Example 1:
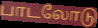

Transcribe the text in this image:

பாடலோடு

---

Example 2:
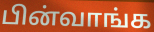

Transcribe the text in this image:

பின்வாங்க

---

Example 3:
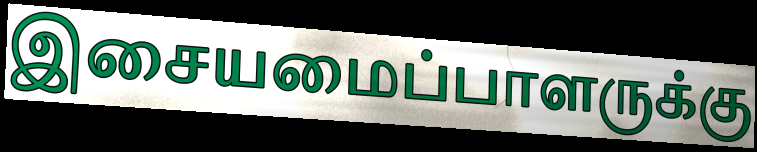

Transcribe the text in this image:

இசையமைப்பாளருக்கு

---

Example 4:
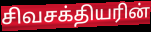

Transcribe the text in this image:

சிவசக்தியரின்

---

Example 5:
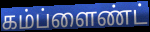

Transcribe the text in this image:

கம்ப்ளைண்ட்